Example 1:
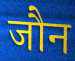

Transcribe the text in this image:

जौन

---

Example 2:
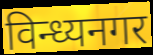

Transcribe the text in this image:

विन्ध्यनगर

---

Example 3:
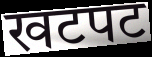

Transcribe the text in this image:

खटपट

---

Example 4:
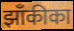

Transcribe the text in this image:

झाँकीका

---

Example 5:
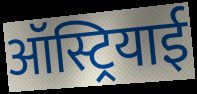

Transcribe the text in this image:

ऑस्ट्रियाई